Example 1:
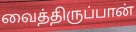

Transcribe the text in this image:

வைத்திருப்பான்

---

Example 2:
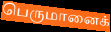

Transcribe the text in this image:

பெருமானைக்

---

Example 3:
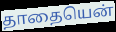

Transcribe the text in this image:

தாதையென்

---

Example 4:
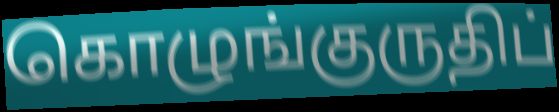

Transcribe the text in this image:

கொழுங்குருதிப்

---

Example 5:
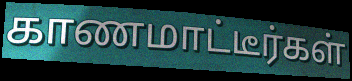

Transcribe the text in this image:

காணமாட்டீர்கள்